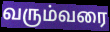
வரும்வரை